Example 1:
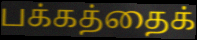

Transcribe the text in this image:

பக்கத்தைக்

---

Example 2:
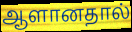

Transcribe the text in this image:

ஆளானதால்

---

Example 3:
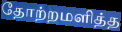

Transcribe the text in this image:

தோற்றமளித்த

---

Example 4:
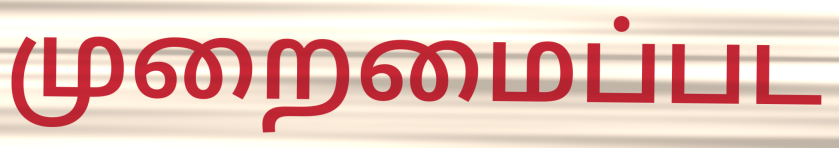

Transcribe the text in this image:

முறைமைப்பட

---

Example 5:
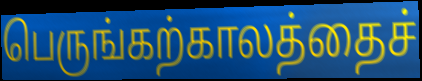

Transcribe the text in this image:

பெருங்கற்காலத்தைச்